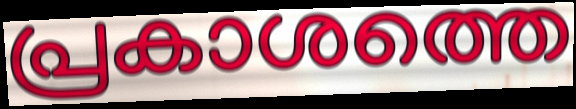
പ്രകാശത്തെ